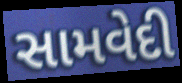
સામવેદી